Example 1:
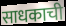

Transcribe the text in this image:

साधकाची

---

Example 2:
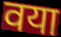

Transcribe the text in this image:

वया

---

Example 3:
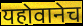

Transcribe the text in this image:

यहोवानेच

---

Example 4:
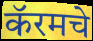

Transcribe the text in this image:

कॅरमचे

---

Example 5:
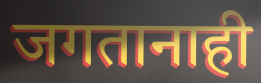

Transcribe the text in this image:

जगतानाही